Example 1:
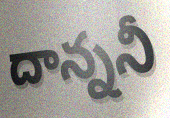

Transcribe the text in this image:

దాన్ననీ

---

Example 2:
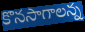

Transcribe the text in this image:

కొనసాగాలన్న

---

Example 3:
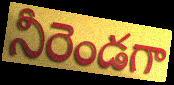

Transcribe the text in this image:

నీరెండగా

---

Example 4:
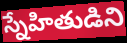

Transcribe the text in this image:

స్నేహితుడిని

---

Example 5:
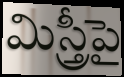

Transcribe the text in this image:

మిస్త్రీపై